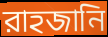
রাহজানি